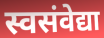
स्वसंवेद्या